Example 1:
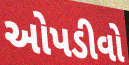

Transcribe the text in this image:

ઓપડીવો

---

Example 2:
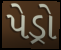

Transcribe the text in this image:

પેડ્રો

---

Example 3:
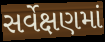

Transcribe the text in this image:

સર્વેક્ષણમાં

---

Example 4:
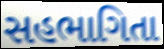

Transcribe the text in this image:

સહભાગિતા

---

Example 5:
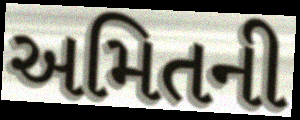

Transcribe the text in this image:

અમિતની